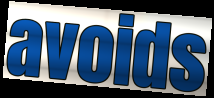
avoids